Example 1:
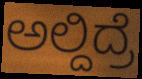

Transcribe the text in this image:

ಅಲ್ದಿದ್ರೆ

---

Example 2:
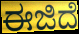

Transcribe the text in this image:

ಈಜಿದೆ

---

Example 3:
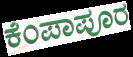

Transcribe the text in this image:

ಕೆಂಪಾಪೂರ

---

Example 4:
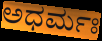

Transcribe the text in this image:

ಅಧರ್ಮಃ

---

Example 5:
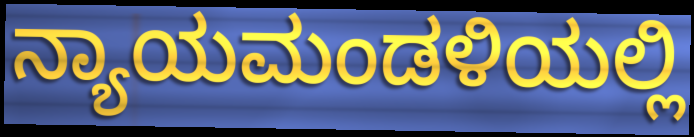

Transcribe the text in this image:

ನ್ಯಾಯಮಂಡಳಿಯಲ್ಲಿ